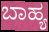
ಬಾಹ್ಯ